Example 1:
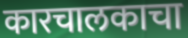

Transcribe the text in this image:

कारचालकाचा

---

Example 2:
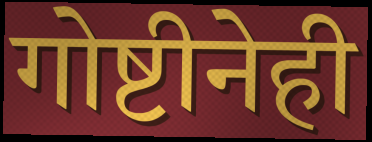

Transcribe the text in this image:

गोष्टीनेही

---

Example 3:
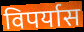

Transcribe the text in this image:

विपर्यास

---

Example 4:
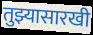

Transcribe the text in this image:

तुझ्यासारखी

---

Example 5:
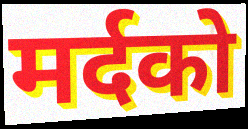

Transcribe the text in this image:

मर्दको